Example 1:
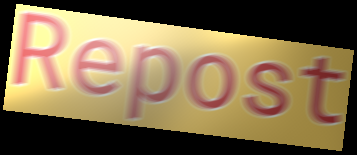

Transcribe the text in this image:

Repost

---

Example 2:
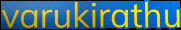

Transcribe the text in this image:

varukirathu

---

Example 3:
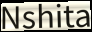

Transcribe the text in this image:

Nshita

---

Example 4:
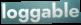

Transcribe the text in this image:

loggable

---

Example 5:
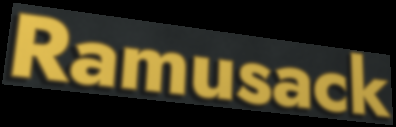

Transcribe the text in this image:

Ramusack